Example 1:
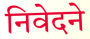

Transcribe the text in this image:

निवेदने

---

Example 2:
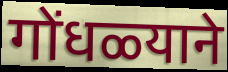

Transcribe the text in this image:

गोंधळ्याने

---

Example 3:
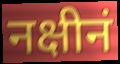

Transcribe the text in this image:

नक्षीनं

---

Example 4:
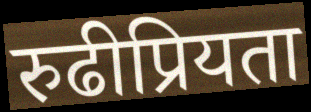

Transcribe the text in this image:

रुढीप्रियता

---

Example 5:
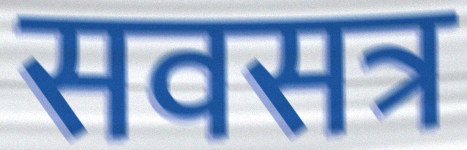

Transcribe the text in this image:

सवसत्र